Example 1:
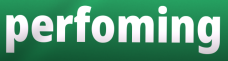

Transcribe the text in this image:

perfoming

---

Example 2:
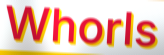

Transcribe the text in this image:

Whorls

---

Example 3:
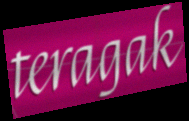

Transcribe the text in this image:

teragak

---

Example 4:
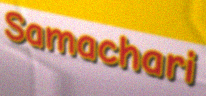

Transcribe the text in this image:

Samachari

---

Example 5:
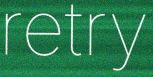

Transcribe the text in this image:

retry